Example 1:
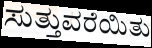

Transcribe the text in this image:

ಸುತ್ತುವರೆಯಿತು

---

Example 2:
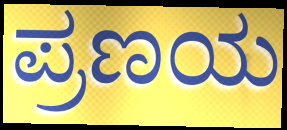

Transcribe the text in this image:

ಪ್ರಣಯ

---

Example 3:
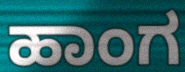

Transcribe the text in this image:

ಹಾಂಗ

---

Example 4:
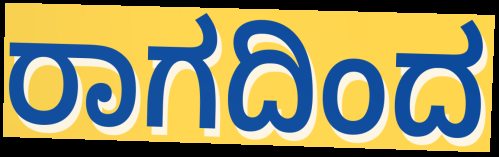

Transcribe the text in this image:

ರಾಗದಿಂದ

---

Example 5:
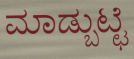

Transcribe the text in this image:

ಮಾಡ್ಬುಟ್ಟೆ